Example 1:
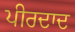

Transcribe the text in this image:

ਪੀਰਦਾਦ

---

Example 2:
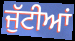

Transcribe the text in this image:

ਜੁੱਟੀਆਂ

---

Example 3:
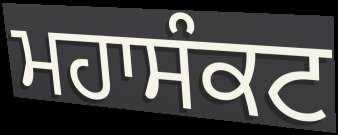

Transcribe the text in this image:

ਮਹਾਸੰਕਟ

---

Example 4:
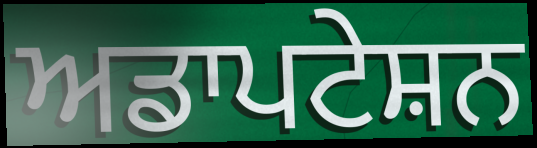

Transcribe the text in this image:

ਅਡਾਪਟੇਸ਼ਨ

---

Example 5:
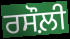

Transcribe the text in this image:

ਰਸੌਲ਼ੀ